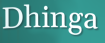
Dhinga